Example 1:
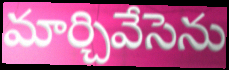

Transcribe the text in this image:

మార్చివేసెను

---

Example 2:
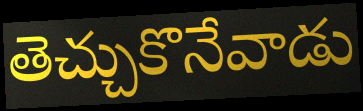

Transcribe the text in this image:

తెచ్చుకొనేవాడు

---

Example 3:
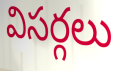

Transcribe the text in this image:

విసర్గలు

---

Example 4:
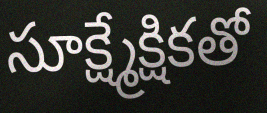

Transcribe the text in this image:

సూక్ష్మేక్షికతో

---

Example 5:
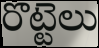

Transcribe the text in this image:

రొట్టెలు